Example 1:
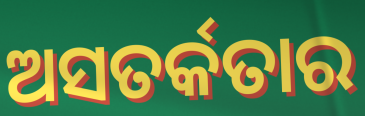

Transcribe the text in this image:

ଅସତର୍କତାର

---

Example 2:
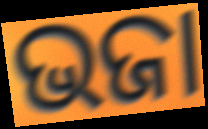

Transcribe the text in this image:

ଭଜା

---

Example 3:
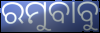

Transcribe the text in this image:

ରମୁବାବୁ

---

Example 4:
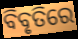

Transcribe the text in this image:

ବିବୃତିରେ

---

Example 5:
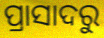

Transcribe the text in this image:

ପ୍ରାସାଦରୁ